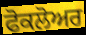
ਫੋਕਲੋਅਰ